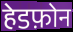
हेडफ़ोन